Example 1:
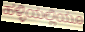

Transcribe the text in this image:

ಹಳ್ಳಿಯಲ್ಲಿಯೂ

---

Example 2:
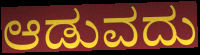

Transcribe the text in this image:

ಆಡುವದು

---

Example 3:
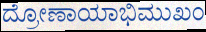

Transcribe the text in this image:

ದ್ರೋಣಾಯಾಭಿಮುಖಂ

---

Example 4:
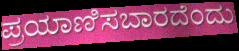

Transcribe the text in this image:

ಪ್ರಯಾಣಿಸಬಾರದೆಂದು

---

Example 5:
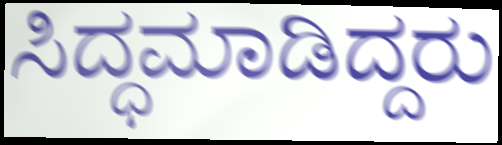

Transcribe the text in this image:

ಸಿದ್ಧಮಾಡಿದ್ದರು